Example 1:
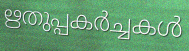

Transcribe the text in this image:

ഋതുപ്പകർച്ചകൾ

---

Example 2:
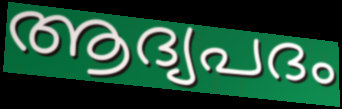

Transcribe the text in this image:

ആദ്യപദം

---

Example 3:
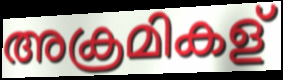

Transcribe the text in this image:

അക്രമികള്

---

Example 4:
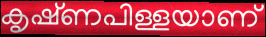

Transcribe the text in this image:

കൃഷ്‌ണപിള്ളയാണ്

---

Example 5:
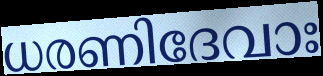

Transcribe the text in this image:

ധരണിദേവാഃ